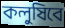
কলুষিবে